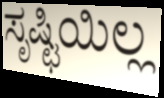
ಸೃಷ್ಟಿಯಿಲ್ಲ